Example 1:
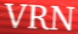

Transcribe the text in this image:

VRN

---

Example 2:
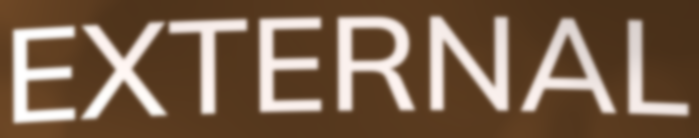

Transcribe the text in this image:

EXTERNAL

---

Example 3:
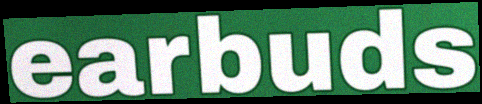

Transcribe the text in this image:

earbuds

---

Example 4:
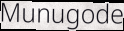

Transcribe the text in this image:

Munugode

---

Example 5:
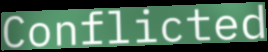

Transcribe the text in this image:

Conflicted